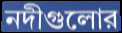
নদীগুলোর